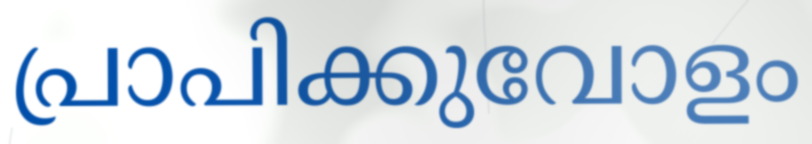
പ്രാപിക്കുവോളം